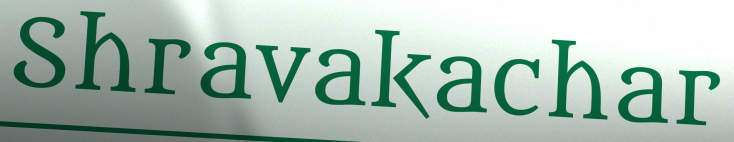
Shravakachar